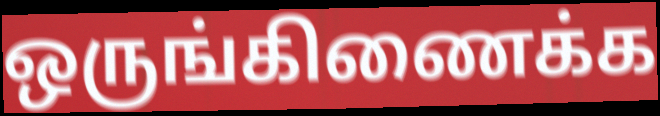
ஒருங்கிணைக்க